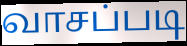
வாசப்படி